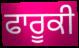
ਫਾਰੂਕੀ